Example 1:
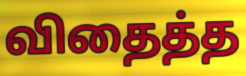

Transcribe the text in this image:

விதைத்த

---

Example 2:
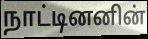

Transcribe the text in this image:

நாட்டினனின்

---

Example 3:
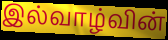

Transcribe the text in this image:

இல்வாழ்வின்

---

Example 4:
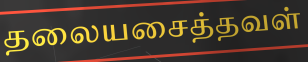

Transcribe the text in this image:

தலையசைத்தவள்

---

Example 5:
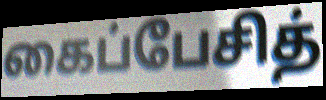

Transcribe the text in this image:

கைப்பேசித்